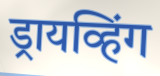
ड्रायव्हिंग